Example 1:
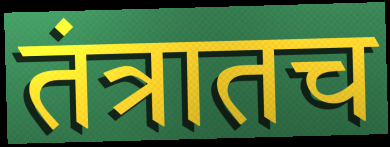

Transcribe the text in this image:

तंत्रातच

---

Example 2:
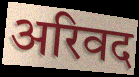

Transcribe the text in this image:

अरिवद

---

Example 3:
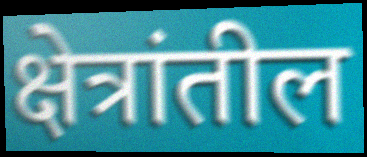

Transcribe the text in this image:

क्षेत्रांतील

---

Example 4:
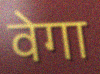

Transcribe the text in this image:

वेगा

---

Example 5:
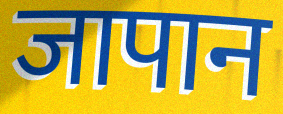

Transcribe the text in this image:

जापान